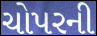
ચોપરની